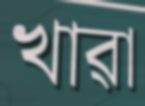
খাৱা